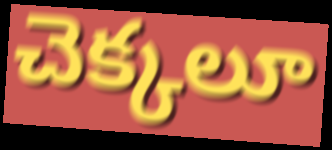
చెక్కలూ